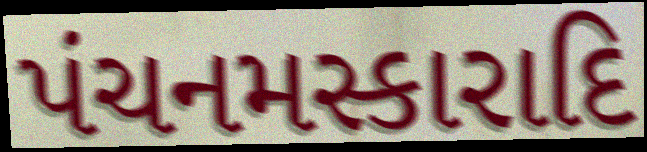
પંચનમસ્કારાદિ